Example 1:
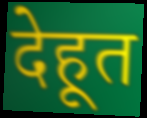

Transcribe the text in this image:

देहूत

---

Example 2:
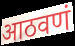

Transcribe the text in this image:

आठवणं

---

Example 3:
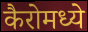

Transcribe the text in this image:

कैरोमध्ये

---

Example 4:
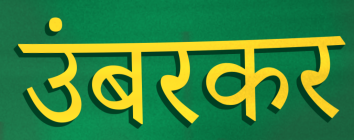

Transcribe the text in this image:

उंबरकर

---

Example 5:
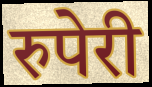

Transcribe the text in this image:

रुपेरी